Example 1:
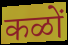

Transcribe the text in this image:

कळों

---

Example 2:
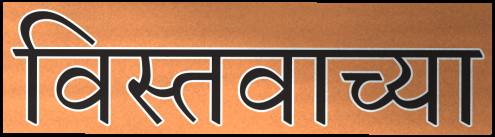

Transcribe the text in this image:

विस्तवाच्या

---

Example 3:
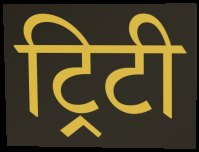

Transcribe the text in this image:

ट्रिटी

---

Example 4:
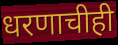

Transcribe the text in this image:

धरणाचीही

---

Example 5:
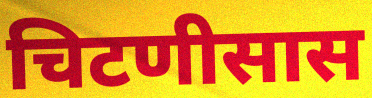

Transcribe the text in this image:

चिटणीसास